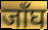
जाँघ